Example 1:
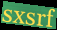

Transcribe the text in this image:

sxsrf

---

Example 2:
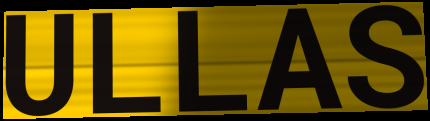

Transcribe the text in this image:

ULLAS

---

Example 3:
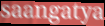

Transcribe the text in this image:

saangatya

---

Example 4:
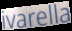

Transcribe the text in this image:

ivarella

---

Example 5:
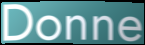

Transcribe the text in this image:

Donne